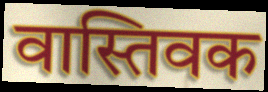
वास्तिवक